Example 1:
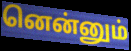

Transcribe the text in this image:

னென்னும்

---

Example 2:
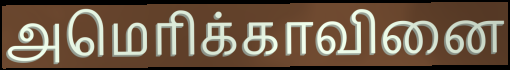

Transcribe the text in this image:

அமெரிக்காவினை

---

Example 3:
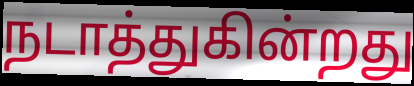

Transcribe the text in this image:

நடாத்துகின்றது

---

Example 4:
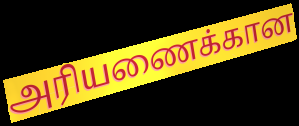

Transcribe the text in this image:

அரியணைக்கான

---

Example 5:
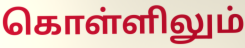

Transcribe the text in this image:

கொள்ளிலும்